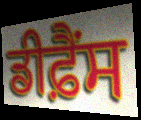
ਡੀਫ਼ੈਂਸ